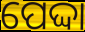
ପେଦ୍ଦା